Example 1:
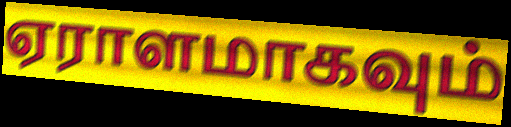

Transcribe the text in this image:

ஏராளமாகவும்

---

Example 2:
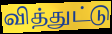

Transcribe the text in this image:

வித்துட்டு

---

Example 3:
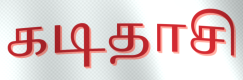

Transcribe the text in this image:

கடிதாசி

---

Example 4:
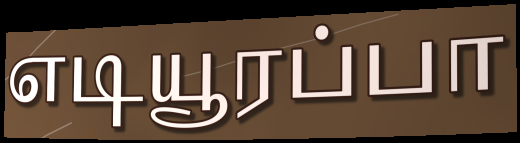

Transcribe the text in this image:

எடியூரப்பா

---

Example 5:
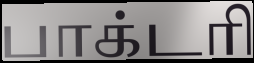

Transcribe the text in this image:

பாக்டரி